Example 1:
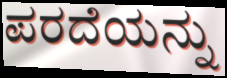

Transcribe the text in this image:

ಪರದೆಯನ್ನು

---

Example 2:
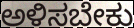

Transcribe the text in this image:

ಅಳಿಸಬೇಕು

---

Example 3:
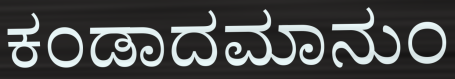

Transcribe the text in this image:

ಕಂಡಾದಮಾನುಂ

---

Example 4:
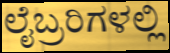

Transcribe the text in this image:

ಲೈಬ್ರರಿಗಳಲ್ಲಿ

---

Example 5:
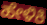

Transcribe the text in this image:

ಹೇಳಿಕಿ